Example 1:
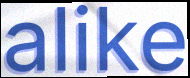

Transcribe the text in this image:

alike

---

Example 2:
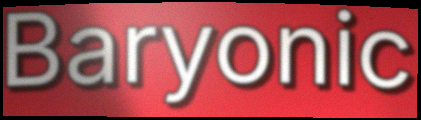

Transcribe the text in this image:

Baryonic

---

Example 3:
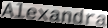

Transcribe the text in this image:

Alexandra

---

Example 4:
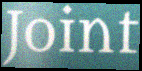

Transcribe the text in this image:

Joint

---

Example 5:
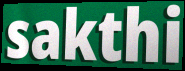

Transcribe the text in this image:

sakthi